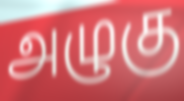
அழுகு